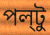
পল্‌টু